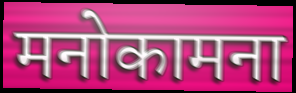
मनोकामना